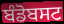
ਬੰਡੋਬਸਟ